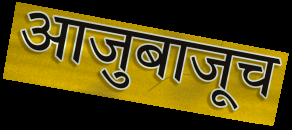
आजुबाजूच